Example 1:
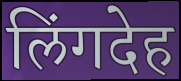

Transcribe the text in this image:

लिंगदेह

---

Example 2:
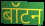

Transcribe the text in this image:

बॉटन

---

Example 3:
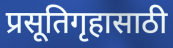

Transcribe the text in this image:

प्रसूतिगृहासाठी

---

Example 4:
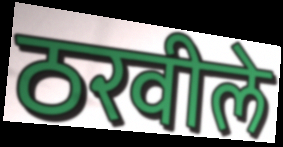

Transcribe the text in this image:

ठरवीले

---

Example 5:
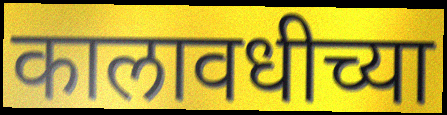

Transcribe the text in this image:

कालावधीच्या